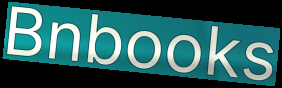
Bnbooks